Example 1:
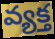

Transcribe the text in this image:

వ్యక్త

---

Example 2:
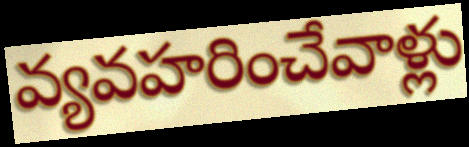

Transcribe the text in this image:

వ్యవహరించేవాళ్లు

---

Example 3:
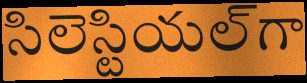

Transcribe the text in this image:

సిలెస్టియల్‌గా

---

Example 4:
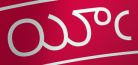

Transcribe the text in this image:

యీఁ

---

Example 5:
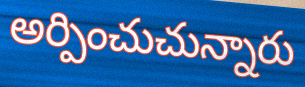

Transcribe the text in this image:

అర్పించుచున్నారు